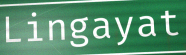
Lingayat